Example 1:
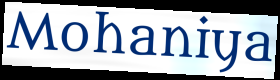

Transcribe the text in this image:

Mohaniya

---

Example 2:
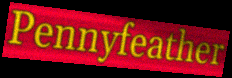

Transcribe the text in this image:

Pennyfeather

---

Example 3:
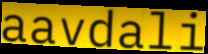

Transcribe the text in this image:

aavdali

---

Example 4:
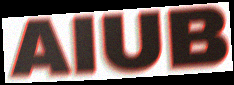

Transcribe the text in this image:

AIUB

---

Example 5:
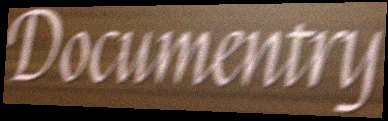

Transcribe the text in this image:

Documentry